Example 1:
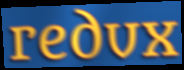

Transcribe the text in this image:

redux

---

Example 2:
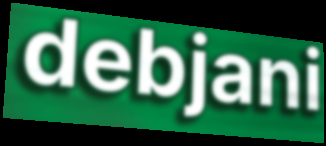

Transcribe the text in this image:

debjani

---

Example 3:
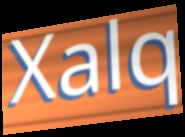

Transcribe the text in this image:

Xalq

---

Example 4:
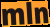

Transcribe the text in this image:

mln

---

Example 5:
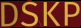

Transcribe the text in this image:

DSKP